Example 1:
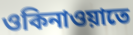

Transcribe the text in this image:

ওকিনাওয়াতে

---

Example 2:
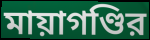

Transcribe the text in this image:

মায়াগণ্ডির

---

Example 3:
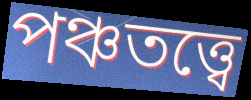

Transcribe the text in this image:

পঞ্চতত্ত্বে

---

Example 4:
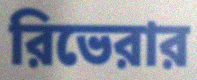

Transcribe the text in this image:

রিভেরার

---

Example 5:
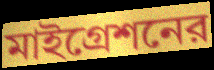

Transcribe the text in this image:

মাইগ্রেশনের